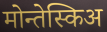
मोन्तेस्किअ